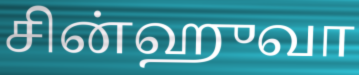
சின்ஹுவா